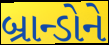
બ્રાન્ડોને